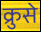
क्रुसे